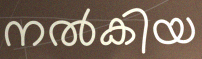
നൽകിയ